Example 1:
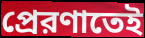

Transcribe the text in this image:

প্রেরণাতেই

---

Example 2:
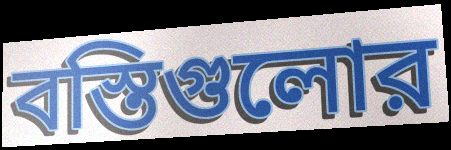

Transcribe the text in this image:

বস্তিগুলোর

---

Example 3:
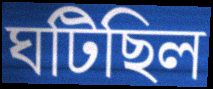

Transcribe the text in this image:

ঘটিছিল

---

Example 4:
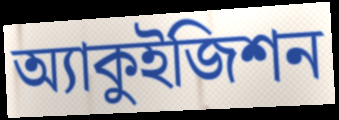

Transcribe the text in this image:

অ্যাকুইজিশন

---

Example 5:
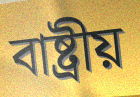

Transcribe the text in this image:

বাষ্ট্রীয়